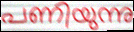
പണിയുന്നു